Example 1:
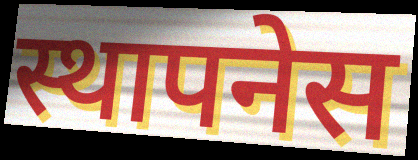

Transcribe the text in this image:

स्थापनेस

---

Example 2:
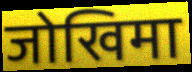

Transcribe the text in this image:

जोखिमा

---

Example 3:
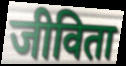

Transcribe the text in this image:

जीविता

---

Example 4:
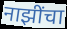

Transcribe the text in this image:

नाझींचा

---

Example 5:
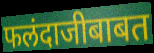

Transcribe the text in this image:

फलंदाजीबाबत